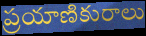
ప్రయాణికురాలు